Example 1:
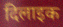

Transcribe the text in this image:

दिलाइक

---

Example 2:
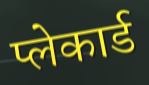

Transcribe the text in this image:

प्लेकार्ड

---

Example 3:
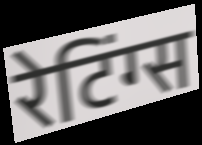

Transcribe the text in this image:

रेटिंग्स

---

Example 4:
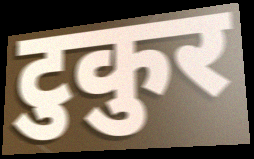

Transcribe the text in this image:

टुकुर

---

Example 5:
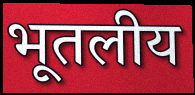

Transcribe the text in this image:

भूतलीय